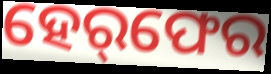
ହେର୍‌ଫେର